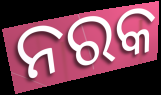
ନରକ